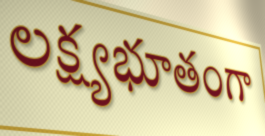
లక్ష్యభూతంగా